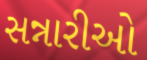
સન્નારીઓ